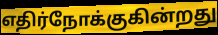
எதிர்நோக்குகின்றது